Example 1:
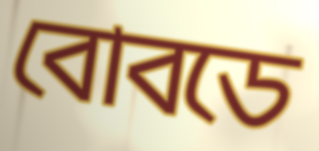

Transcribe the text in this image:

বোবডে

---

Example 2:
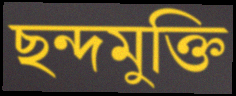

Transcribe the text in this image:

ছন্দমুক্তি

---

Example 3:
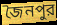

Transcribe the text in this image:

জৈনপুর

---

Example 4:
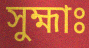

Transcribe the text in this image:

সুহ্মাঃ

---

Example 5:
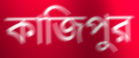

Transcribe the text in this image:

কাজিপুর